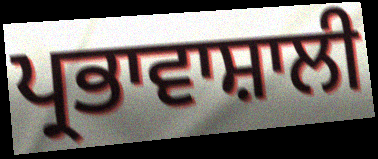
ਪ੍ਰਭਾਵਾਸ਼ਾਲੀ